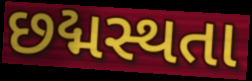
છદ્મસ્થતા